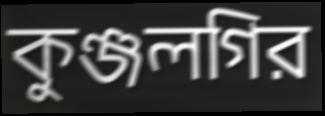
কুঞ্জলগির